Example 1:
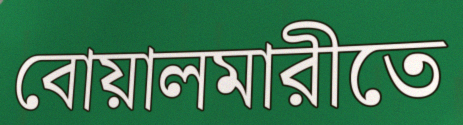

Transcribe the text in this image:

বোয়ালমারীতে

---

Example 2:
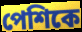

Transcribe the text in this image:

পেশিকে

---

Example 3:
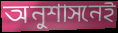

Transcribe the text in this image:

অনুশাসনেই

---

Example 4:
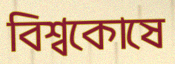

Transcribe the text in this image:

বিশ্বকোষে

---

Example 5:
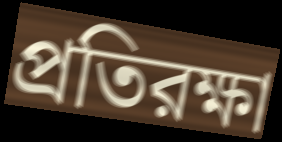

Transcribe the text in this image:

প্রতিরক্ষা